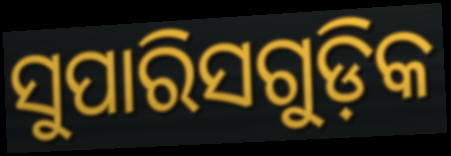
ସୁପାରିସଗୁଡ଼ିକ